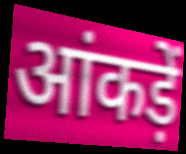
आंकड़ें